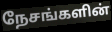
நேசங்களின்